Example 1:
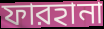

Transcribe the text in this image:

ফারহানা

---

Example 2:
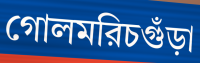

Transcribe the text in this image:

গোলমরিচগুঁড়া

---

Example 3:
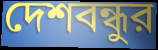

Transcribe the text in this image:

দেশবন্ধুর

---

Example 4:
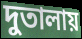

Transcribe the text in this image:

দুতালায়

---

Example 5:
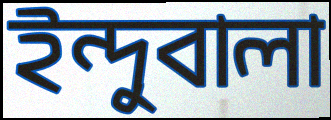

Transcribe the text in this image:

ইন্দুবালা